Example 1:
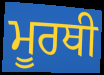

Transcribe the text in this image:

ਮੂਰਥੀ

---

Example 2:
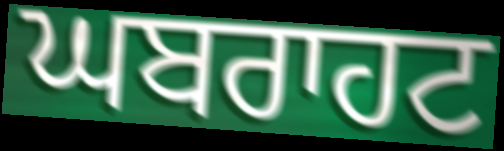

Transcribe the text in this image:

ਘਬਰਾਹਟ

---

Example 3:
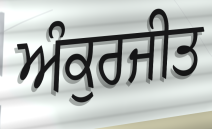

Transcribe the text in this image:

ਅੰਕੁਰਜੀਤ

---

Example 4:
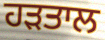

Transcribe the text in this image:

ਹੜਤਾਲ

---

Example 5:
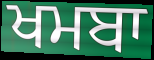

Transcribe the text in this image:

ਖਮਬਾ